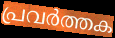
പ്രവർത്തക